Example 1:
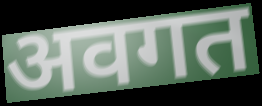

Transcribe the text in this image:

अवगत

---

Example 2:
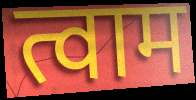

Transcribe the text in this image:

त्वाम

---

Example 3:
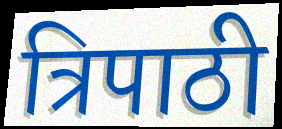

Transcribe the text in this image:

त्रिपाठी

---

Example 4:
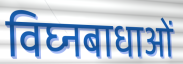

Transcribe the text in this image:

विघ्नबाधाओं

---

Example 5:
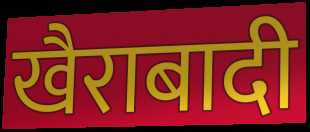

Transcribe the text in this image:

खैराबादी